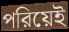
পরিয়েই